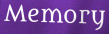
Memory